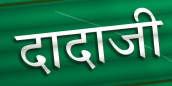
दादाजी